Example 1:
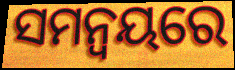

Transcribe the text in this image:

ସମନ୍ବୟରେ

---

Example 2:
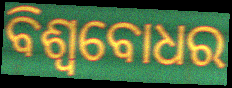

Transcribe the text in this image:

ବିଶ୍ବବୋଧର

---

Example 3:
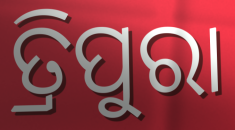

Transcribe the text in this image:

ତ୍ରିପୁରା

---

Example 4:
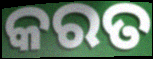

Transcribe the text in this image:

କରତ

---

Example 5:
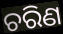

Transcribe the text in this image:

ଚରିଣ